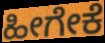
ಹೀಗೇಕೆ